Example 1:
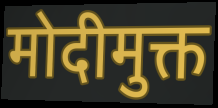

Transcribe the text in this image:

मोदीमुक्त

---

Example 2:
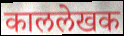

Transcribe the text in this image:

काललेखक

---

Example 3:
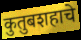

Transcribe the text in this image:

कुतुबशहाचे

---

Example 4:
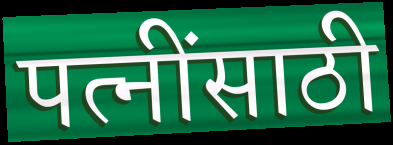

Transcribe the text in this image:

पत्नींसाठी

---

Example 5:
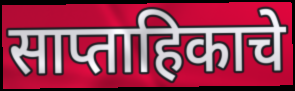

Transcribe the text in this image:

साप्ताहिकाचे